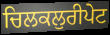
ਚਿਲਕਲੁਰੀਪੇਟ